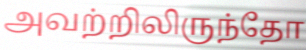
அவற்றிலிருந்தோ